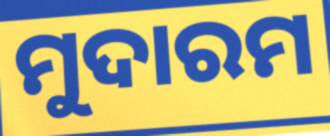
ମୁଦାରମ